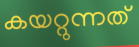
കയറ്റുന്നത്